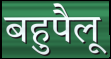
बहुपैलू